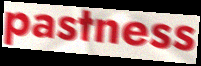
pastness